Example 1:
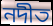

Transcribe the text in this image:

নদীত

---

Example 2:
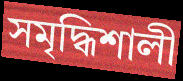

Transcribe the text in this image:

সমৃদ্ধিশালী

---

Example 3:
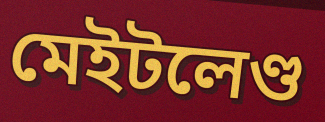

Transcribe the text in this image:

মেইটলেণ্ড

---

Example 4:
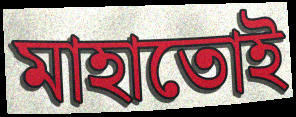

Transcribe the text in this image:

মাহাতোই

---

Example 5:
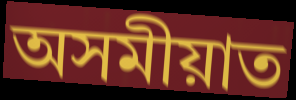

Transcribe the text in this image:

অসমীয়াত